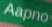
Aapno